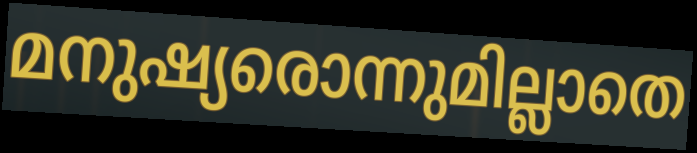
മനുഷ്യരൊന്നുമില്ലാതെ